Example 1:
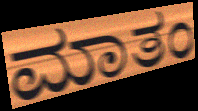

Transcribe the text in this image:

ಮಾತಂ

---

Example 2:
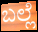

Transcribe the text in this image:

ಬಲ್ಲೆ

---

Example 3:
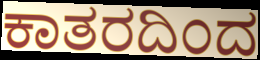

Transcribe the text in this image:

ಕಾತರದಿಂದ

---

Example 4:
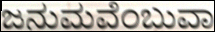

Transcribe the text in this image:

ಜನುಮವೆಂಬುವಾ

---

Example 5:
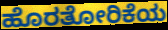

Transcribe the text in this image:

ಹೊರತೋರಿಕೆಯ